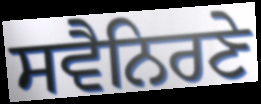
ਸਵੈਨਿਰਣੇ